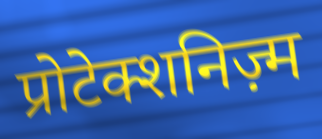
प्रोटेक्शनिज़्म